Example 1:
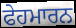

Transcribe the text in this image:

ਫੇਹਮਾਰਨ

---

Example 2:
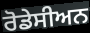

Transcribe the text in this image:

ਰੋਡੇਸੀਅਨ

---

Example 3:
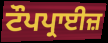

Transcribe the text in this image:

ਟੌਪਪ੍ਰਾਈਜ਼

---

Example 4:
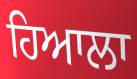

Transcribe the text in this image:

ਹਿਆਲਾ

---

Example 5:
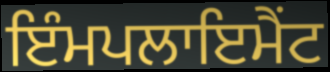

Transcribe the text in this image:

ਇੰਮਪਲਾਇਮੈਂਟ